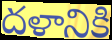
దళానికి